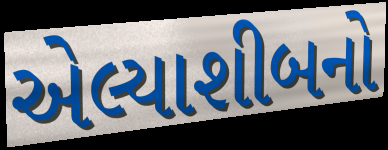
એલ્યાશીબનો